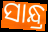
ସାନ୍ଧ୍ର